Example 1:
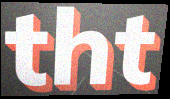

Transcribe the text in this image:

tht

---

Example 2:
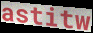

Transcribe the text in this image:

astitw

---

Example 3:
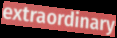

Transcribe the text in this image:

extraordinary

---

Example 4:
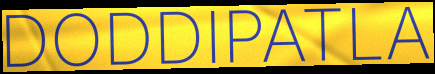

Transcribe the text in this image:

DODDIPATLA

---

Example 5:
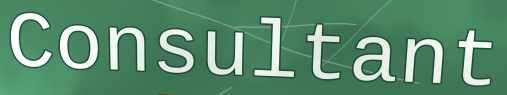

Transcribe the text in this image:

Consultant